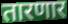
तारणार